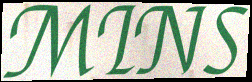
MINS